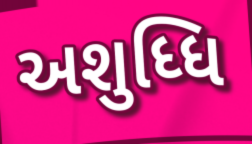
અશુધ્ધિ